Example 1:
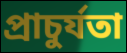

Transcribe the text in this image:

প্রাচুর্যতা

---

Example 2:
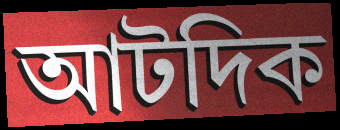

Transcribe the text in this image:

আটদিক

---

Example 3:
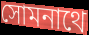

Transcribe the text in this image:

সোমনাথে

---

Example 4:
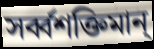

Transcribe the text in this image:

সর্ব্বশক্তিমান্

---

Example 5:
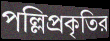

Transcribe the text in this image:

পল্লিপ্রকৃতির